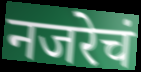
नजरेचं